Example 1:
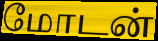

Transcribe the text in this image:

மோடன்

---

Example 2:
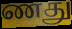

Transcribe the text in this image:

ணது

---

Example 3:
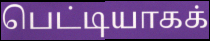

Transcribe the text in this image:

பெட்டியாகக்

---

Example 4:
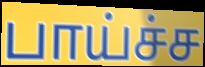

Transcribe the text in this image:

பாய்ச்ச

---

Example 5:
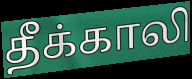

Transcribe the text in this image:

தீக்காலி